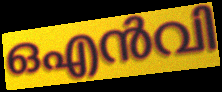
ഒഎൻവി